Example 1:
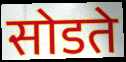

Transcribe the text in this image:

सोडते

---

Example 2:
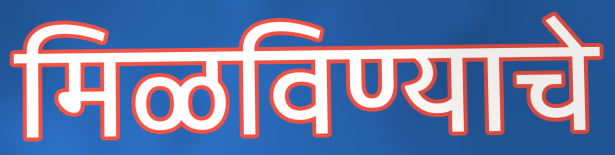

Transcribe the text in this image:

मिळविण्याचे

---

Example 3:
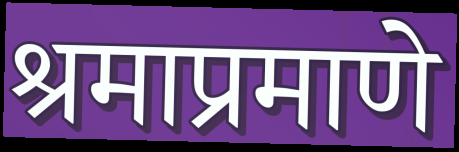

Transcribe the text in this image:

श्रमाप्रमाणे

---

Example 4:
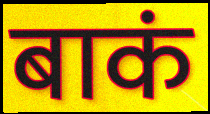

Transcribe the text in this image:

बाकं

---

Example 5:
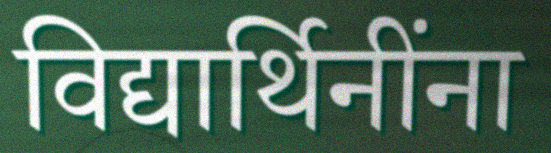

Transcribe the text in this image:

विद्यार्थिनींना